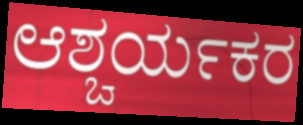
ಆಶ್ಚರ್ಯಕರ